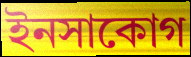
ইনসাকোগ